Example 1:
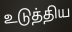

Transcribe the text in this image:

உடுத்திய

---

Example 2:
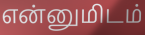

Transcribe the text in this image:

என்னுமிடம்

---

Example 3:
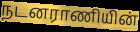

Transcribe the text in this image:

நடனராணியின்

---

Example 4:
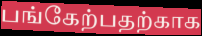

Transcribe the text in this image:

பங்கேற்பதற்காக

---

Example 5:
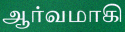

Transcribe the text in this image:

ஆர்வமாகி